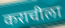
कराचीला